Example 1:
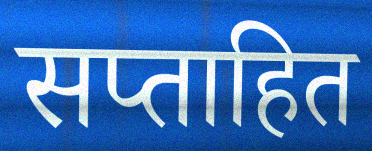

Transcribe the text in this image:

सप्ताहित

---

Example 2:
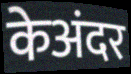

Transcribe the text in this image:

केअंदर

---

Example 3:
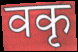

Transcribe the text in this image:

वकृ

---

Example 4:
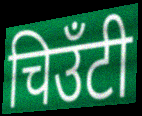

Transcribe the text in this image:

चिउँटी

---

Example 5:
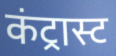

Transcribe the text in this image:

कंट्रास्ट